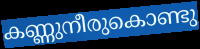
കണ്ണുനീരുകൊണ്ടു